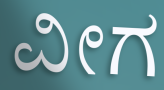
ವೀಗ